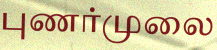
புணர்முலை